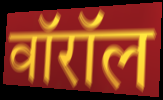
वॉरॉल